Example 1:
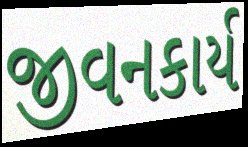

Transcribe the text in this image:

જીવનકાર્ય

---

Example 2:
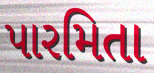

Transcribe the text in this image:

પારમિતા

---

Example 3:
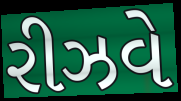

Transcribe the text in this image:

રીઝવે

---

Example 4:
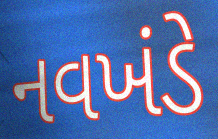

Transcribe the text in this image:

નવખંડે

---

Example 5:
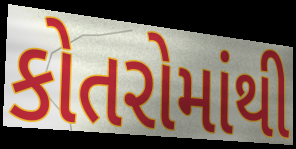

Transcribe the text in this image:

કોતરોમાંથી